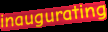
inaugurating